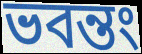
ভবন্তং